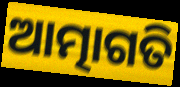
ଆତ୍ମାଗତି